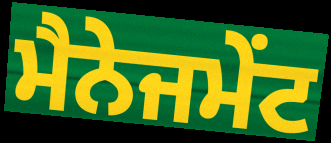
ਮੈਨੇਜਮੇੰਟ